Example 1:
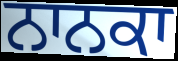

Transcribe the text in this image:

ਨਾਨਕਾ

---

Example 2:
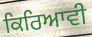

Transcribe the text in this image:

ਕਿਰਿਆਵੀ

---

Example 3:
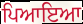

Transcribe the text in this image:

ਪਿਆਇਆ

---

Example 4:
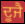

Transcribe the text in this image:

ਦੂਜੈ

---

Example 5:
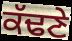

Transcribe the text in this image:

ਕੱਢਣੇ